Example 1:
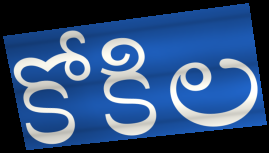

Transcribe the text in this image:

కోకిల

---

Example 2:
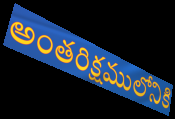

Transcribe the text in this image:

అంతరిక్షములోనికి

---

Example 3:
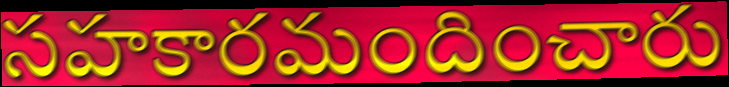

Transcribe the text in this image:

సహకారమందించారు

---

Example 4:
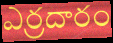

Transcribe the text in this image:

ఎర్రదారం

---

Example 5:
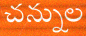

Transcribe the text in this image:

చన్నుల